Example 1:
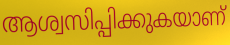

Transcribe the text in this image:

ആശ്വസിപ്പിക്കുകയാണ്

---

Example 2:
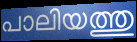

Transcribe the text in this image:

പാലിയത്തു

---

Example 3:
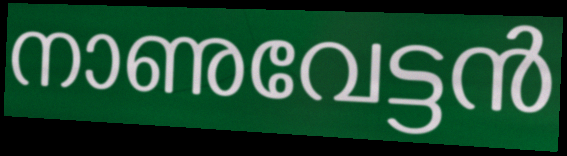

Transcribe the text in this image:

നാണുവേട്ടൻ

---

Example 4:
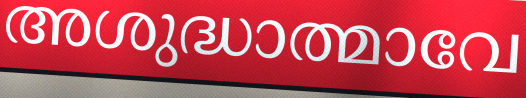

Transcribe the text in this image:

അശുദ്ധാത്മാവേ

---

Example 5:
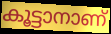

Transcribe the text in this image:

കൂട്ടാനാണ്